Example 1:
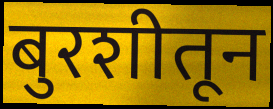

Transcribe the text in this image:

बुरशीतून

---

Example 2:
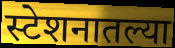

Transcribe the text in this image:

स्टेशनातल्या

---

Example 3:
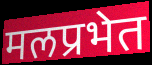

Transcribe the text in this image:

मलप्रभेत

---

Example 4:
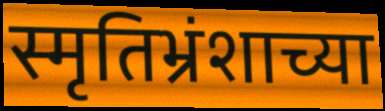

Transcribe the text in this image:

स्मृतिभ्रंशाच्या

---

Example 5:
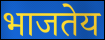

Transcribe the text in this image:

भाजतेय